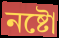
নষ্টো